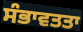
ਸੰਭਾਵਤਤਾ